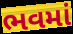
ભવમાં